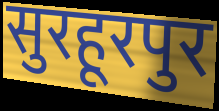
सुरहूरपुर